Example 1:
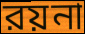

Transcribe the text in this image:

রয়না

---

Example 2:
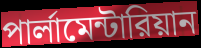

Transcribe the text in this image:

পার্লামেন্টারিয়ান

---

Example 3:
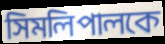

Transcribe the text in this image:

সিমলিপালকে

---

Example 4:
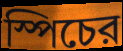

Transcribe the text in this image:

স্পিচের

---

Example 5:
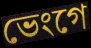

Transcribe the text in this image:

ভেংগে